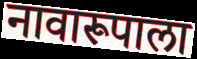
नावारूपाला